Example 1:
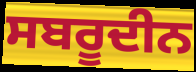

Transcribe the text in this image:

ਸਬਰੂਦੀਨ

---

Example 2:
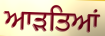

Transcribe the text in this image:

ਆੜਤਿਆਂ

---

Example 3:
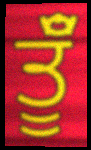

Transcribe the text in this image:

ਤੂੰਁ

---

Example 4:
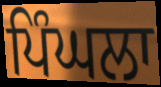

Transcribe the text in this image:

ਪਿੰਘਲਾ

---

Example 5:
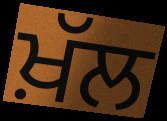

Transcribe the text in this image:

ਖ਼ੱਲ